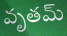
వృతమ్